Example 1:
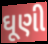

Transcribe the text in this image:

ઘૂણી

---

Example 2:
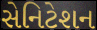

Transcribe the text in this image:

સેનિટેશન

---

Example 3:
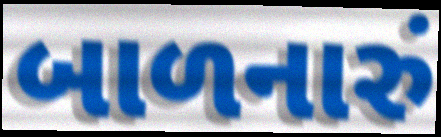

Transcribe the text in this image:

બાળનારું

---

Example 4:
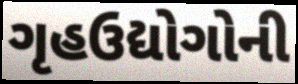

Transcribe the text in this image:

ગૃહઉદ્યોગોની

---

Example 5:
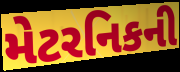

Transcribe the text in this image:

મેટરનિકની